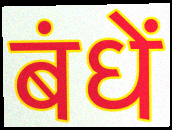
बंधें